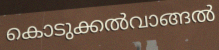
കൊടുക്കൽവാങ്ങൽ